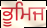
ਭੂਮਿਜ